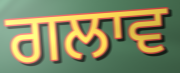
ਗਲਾਵ